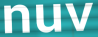
nuv